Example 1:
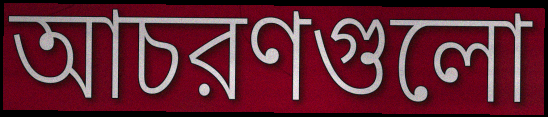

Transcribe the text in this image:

আচরণগুলো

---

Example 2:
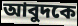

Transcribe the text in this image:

আবুদকে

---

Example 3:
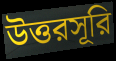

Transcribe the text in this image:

উত্তরসূরি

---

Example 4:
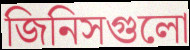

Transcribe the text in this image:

জিনিসগুলো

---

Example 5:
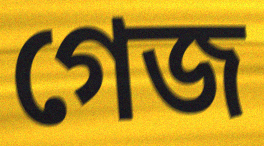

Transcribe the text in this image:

গেজ